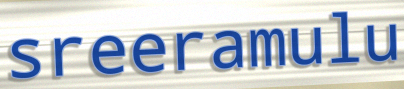
sreeramulu